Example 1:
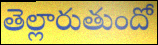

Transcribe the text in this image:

తెల్లారుతుందో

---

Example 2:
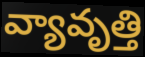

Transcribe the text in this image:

వ్యావృత్తి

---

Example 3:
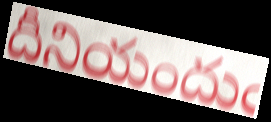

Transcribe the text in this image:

దీనియందుఁ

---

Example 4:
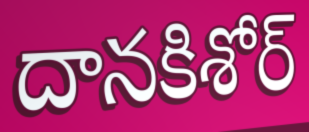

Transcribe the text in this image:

దానకిశోర్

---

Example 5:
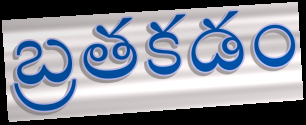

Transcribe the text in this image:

బ్రతకడం